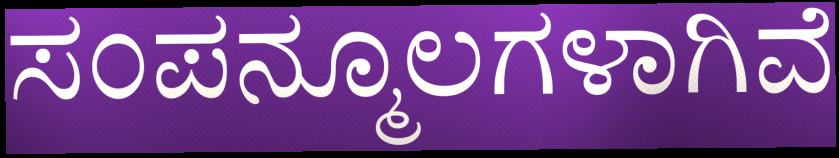
ಸಂಪನ್ಮೂಲಗಳಾಗಿವೆ